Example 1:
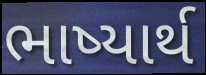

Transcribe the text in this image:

ભાષ્યાર્થ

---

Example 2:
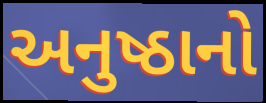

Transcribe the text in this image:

અનુષ્ઠાનો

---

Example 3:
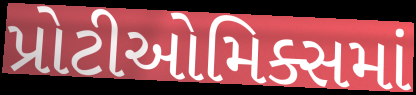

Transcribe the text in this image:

પ્રોટીઓમિક્સમાં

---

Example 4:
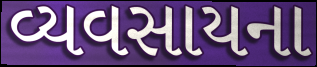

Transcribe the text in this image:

વ્યવસાયના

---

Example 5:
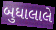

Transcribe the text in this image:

બુધાલાલે